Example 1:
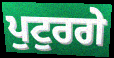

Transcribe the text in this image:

ਪੁਟੁਰਗੇ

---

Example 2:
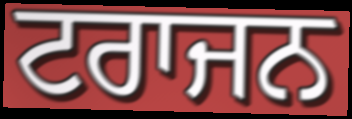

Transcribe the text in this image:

ਟਰਾਜਨ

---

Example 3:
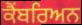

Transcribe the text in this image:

ਕੈਂਬਰਿਅਨ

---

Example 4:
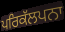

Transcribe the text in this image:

ਪਰਿਕੱਲਪਨਾ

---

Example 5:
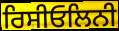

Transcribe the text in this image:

ਰਿਸੀਓਲਿਨੀ